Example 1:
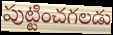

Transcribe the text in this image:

పుట్టించగలడు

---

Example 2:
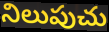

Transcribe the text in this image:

నిలుపుచు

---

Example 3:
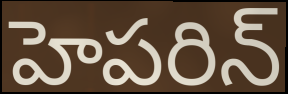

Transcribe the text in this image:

హెపరిన్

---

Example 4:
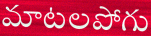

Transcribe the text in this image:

మాటలపోగు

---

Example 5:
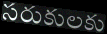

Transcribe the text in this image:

సరుకులకు